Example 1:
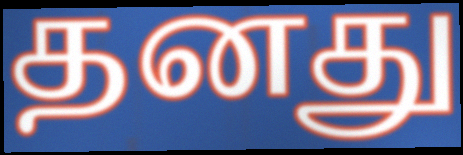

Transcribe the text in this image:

தனது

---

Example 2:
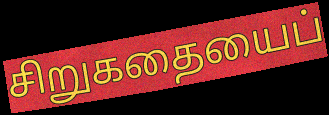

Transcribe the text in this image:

சிறுகதையைப்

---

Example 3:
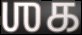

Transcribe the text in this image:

ஶக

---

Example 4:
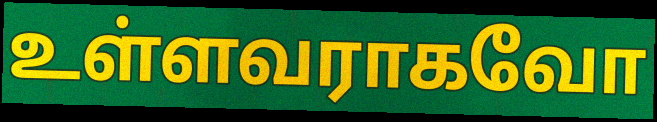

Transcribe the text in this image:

உள்ளவராகவோ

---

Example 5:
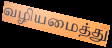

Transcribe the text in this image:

வழியமைத்து